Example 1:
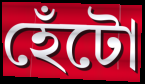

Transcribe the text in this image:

হেঁটো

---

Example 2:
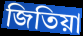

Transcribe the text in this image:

জিতিয়া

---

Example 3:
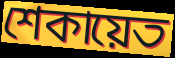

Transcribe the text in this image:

শেকায়েত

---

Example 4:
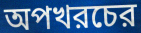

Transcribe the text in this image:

অপখরচের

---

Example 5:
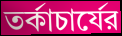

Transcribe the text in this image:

তর্কাচার্যের